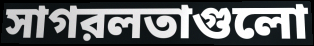
সাগরলতাগুলো